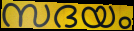
സദയം